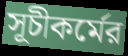
সূচীকর্মের